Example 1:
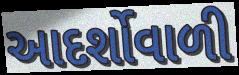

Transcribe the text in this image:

આદર્શોવાળી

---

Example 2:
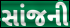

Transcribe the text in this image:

સાંજની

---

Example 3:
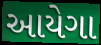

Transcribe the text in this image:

આયેગા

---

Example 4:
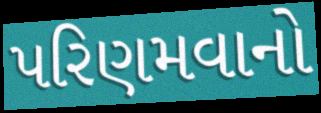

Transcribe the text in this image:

પરિણમવાનો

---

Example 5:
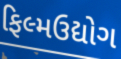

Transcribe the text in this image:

ફિલ્મઉદ્યોગ